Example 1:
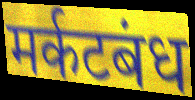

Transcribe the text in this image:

मर्कटबंध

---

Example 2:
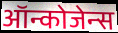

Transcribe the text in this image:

ऑन्कोजेन्स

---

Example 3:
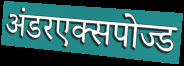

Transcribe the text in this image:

अंडरएक्सपोज्ड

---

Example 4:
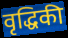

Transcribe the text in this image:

वृद्धिकी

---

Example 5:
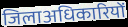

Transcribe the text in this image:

जिलाअधिकारियों